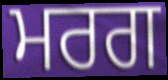
ਮਰਗ